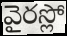
వైరస్లో